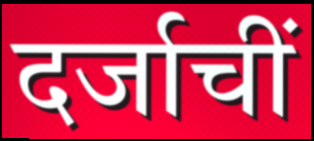
दर्जाचीं